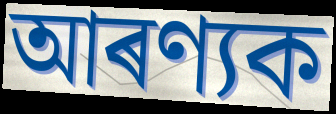
আৰণ্যক